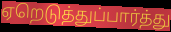
ஏறெடுத்துப்பார்த்து